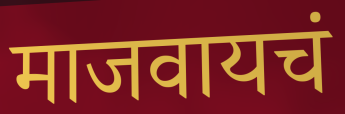
माजवायचं